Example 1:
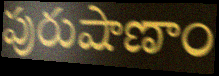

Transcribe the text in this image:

పురుషాణాం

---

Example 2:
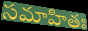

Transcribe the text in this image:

సమాహితః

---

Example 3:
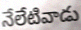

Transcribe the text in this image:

నేలేటివాడు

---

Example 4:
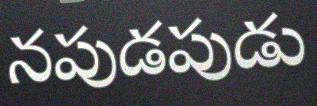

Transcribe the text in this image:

నపుడపుడు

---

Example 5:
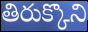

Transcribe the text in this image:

తిరుక్కొని